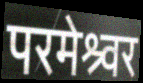
परमेश्र्वर